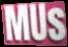
MUs